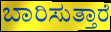
ಬಾರಿಸುತ್ತಾರೆ